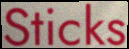
Sticks